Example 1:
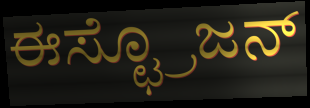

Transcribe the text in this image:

ಈಸ್ಟ್ರೊಜನ್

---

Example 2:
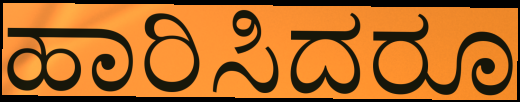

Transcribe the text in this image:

ಹಾರಿಸಿದರೂ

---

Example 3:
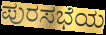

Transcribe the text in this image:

ಪುರಸಭೆಯ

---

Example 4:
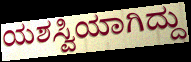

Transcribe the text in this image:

ಯಶಸ್ವಿಯಾಗಿದ್ದು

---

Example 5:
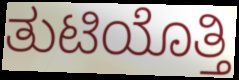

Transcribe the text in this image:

ತುಟಿಯೊತ್ತಿ